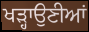
ਖੜ੍ਹਾਉਣੀਆਂ